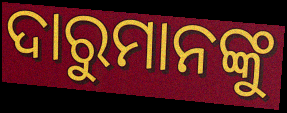
ଦାରୁମାନଙ୍କୁ